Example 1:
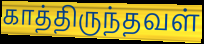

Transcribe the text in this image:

காத்திருந்தவள்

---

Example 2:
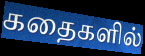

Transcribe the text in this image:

கதைகளில்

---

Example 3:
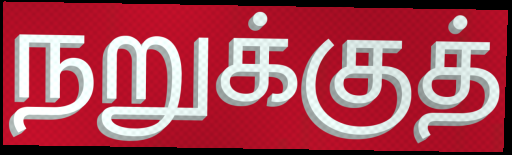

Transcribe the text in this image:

நறுக்குத்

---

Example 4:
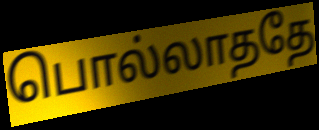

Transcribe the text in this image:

பொல்லாததே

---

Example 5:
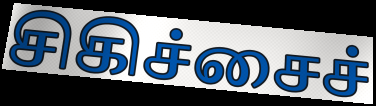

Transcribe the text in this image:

சிகிச்சைச்